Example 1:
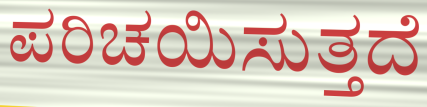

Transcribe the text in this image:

ಪರಿಚಯಿಸುತ್ತದೆ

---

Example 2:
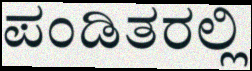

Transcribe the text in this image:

ಪಂಡಿತರಲ್ಲಿ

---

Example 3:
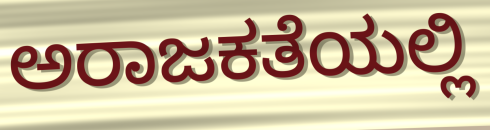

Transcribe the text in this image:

ಅರಾಜಕತೆಯಲ್ಲಿ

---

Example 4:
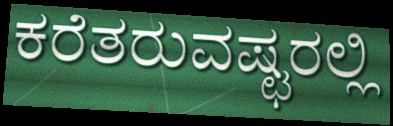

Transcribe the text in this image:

ಕರೆತರುವಷ್ಟರಲ್ಲಿ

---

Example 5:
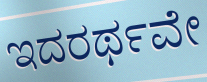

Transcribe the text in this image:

ಇದರರ್ಥವೇ